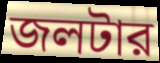
জলটার